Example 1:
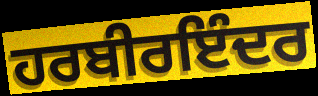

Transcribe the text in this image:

ਹਰਬੀਰਇੰਦਰ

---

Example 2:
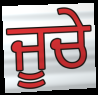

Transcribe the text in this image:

ਜੂਚੇ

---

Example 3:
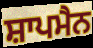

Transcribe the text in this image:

ਸ਼ਾਪਮੈਨ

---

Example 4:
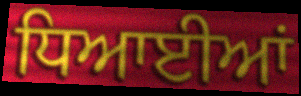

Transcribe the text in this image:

ਧਿਆਈਆਂ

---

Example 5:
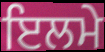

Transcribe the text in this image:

ਇਲਮੇ